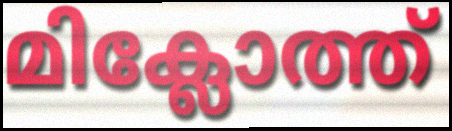
മിക്ലോത്ത്